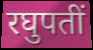
रघुपतीं